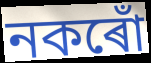
নকৰোঁ